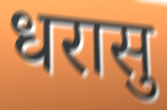
धरासु